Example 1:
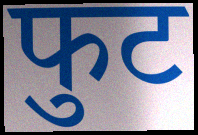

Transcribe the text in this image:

फुट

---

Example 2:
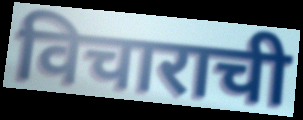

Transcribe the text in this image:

विचाराची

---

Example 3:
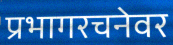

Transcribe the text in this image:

प्रभागरचनेवर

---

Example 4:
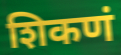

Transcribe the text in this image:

शिकणं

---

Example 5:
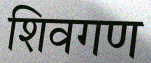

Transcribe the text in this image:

शिवगण